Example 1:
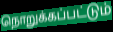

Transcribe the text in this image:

நொறுக்கப்பட்டும்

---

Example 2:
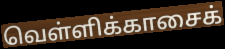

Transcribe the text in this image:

வெள்ளிக்காசைக்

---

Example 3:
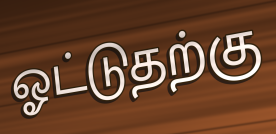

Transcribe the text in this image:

ஓட்டுதற்கு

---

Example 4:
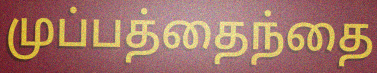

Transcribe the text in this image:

முப்பத்தைந்தை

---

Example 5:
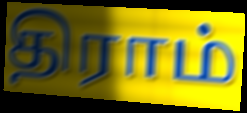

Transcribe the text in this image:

திராம்